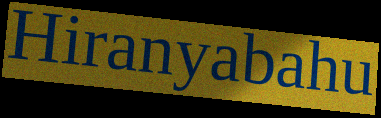
Hiranyabahu